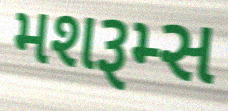
મશરૂમ્સ